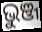
ଭୁଞ୍ଜ